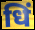
धिं